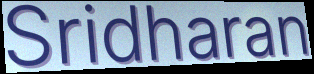
Sridharan